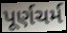
પૂર્ણચર્મ